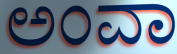
ಅಂವಾ